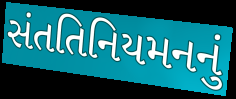
સંતતિનિયમનનું